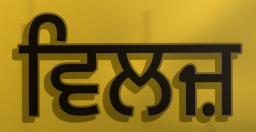
ਵਿਲਜ਼